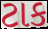
ટાક